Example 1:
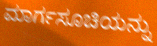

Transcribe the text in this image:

ಮಾರ್ಗಸೂಚಿಯನ್ನು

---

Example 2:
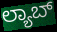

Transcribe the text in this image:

ಲ್ಯಾಬ್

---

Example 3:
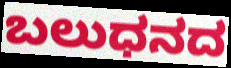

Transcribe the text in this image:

ಬಲುಧನದ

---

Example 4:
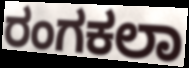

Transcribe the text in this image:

ರಂಗಕಲಾ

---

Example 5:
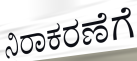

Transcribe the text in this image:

ನಿರಾಕರಣೆಗೆ